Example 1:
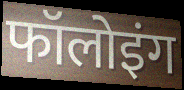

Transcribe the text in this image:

फॉलोइंग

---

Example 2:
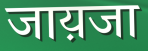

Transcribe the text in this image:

जाय़जा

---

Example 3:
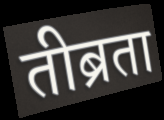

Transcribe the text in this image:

तीब्रता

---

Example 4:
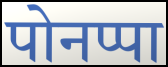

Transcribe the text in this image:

पोनप्‍पा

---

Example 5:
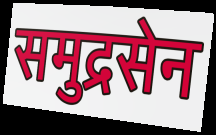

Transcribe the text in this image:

समुद्रसेन